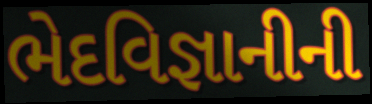
ભેદવિજ્ઞાનીની